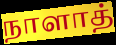
நாளாத்